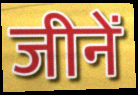
जीनें